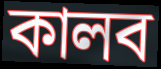
কালব